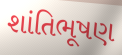
શાંતિભૂષણ